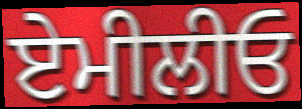
ਏਮੀਲੀਓ